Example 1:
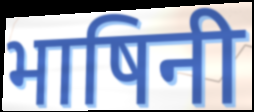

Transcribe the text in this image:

भाषिनी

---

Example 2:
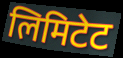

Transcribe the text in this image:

लिमिटेट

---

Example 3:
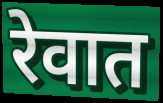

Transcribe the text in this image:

रेवात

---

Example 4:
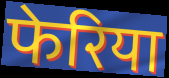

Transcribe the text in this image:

फेरिया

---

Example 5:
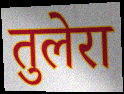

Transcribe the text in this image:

तुलेरा